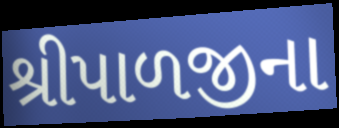
શ્રીપાળજીના